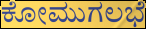
ಕೋಮುಗಲಭೆ